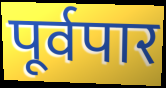
पूर्वपार